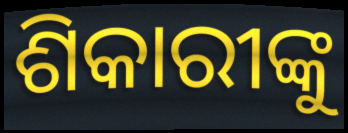
ଶିକାରୀଙ୍କୁ